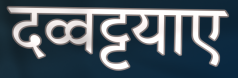
दव्वट्टयाए